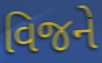
વિજને